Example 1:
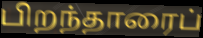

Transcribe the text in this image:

பிறந்தாரைப்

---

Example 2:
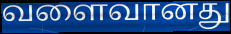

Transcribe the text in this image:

வளைவானது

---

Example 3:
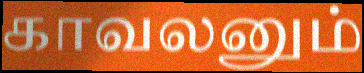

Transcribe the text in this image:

காவலனும்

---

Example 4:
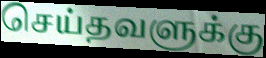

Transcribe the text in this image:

செய்தவளுக்கு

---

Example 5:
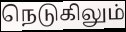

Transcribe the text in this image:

நெடுகிலும்